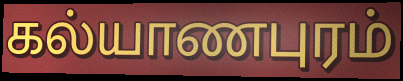
கல்யாணபுரம்